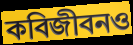
কবিজীবনও